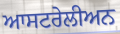
ਆਸਟਰੇਲੀਅਨ